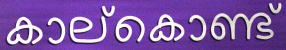
കാല്കൊണ്ട്